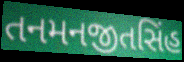
તનમનજીતસિંહ